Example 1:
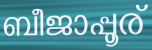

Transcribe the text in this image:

ബീജാപ്പൂര്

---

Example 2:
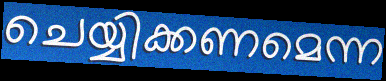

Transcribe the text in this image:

ചെയ്യിക്കണമെന്ന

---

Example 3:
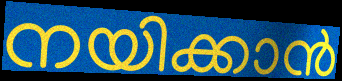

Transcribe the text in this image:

നയിക്കാൻ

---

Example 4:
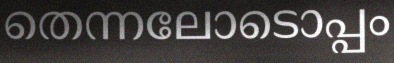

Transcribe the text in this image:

തെന്നലോടൊപ്പം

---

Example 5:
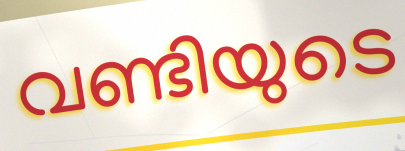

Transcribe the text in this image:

വണ്ടിയുടെ